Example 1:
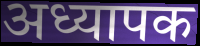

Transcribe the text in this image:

अध्‍यापक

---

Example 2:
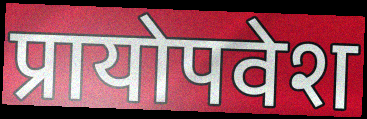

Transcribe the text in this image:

प्रायोपवेश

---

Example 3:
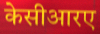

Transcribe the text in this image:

केसीआरए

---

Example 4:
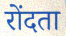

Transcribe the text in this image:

रोंदता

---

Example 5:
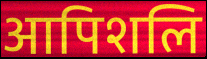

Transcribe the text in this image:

आपिशलि